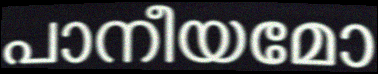
പാനീയമോ